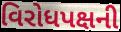
વિરોધપક્ષની